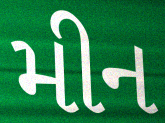
મીન